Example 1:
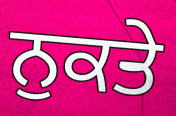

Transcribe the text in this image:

ਨੁਕਤੇ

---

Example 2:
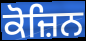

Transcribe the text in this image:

ਕੋਜ਼ਿਨ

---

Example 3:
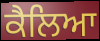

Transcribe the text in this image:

ਕੈਲਿਆ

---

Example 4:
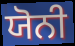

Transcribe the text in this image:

ਯੋਨੀ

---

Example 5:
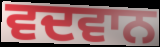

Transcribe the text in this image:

ਵਦਵਾਨ